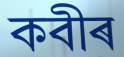
কবীৰ